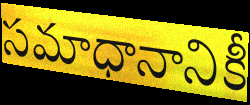
సమాధానానికీ